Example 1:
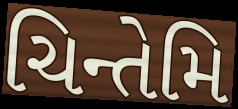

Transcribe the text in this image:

ચિન્તેમિ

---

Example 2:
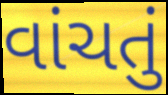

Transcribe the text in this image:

વાંચતું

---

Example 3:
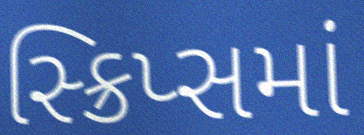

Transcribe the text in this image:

સ્ક્રિપ્સમાં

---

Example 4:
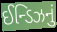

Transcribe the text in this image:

ઈન્ડિઝનું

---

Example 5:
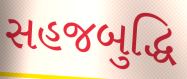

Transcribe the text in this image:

સહજબુદ્ધિ